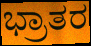
ಭ್ರಾತರ